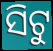
ସିଟୁ